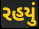
રહયું